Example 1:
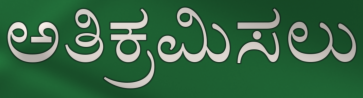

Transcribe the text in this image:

ಅತಿಕ್ರಮಿಸಲು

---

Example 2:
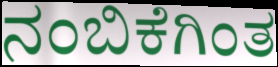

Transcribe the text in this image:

ನಂಬಿಕೆಗಿಂತ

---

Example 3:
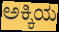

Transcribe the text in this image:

ಅಕ್ಕಿಯ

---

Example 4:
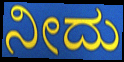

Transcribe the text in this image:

ನೀದು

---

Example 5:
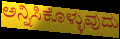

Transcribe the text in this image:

ಅನ್ನಿಸಿಕೊಳ್ಳುವುದು